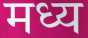
मध्य